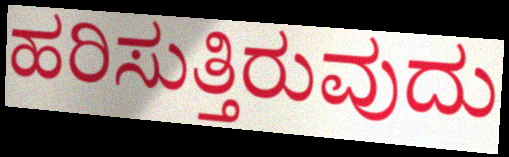
ಹರಿಸುತ್ತಿರುವುದು